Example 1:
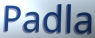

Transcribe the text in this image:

Padla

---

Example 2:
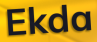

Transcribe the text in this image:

Ekda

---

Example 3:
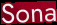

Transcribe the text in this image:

Sona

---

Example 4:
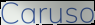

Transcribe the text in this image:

Caruso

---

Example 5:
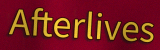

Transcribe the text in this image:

Afterlives